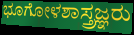
ಭೂಗೋಳಶಾಸ್ತ್ರಜ್ಞರು